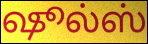
ஷூல்ஸ்